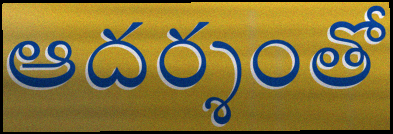
ఆదర్శంతో